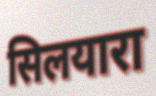
सिलयारा